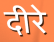
दीरे